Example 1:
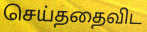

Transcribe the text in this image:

செய்ததைவிட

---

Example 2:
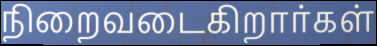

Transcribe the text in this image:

நிறைவடைகிறார்கள்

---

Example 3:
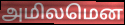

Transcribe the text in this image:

அமிலமென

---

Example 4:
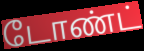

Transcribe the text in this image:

டோண்ட்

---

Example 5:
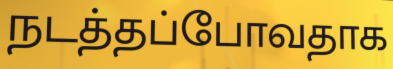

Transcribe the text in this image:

நடத்தப்போவதாக